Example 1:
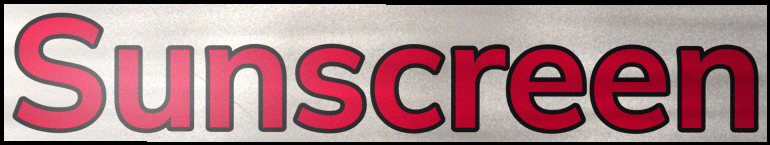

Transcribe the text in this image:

Sunscreen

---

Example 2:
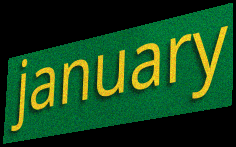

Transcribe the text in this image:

january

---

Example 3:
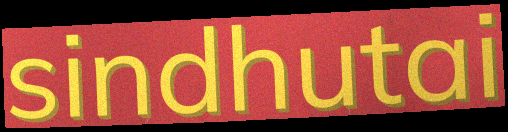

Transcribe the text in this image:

sindhutai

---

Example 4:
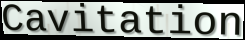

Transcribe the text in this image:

Cavitation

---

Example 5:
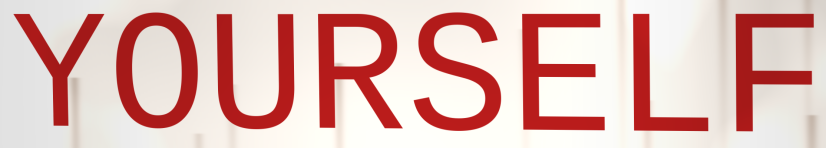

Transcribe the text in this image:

YOURSELF